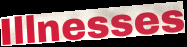
Illnesses